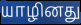
யாழினது